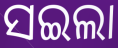
ସଇଲା